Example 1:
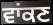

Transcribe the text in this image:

ਵਾਂਕਣ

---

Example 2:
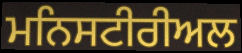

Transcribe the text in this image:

ਮਨਿਸਟੀਰੀਅਲ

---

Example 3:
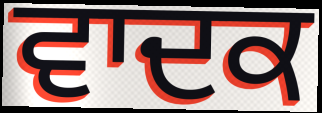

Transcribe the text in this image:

ਵਾਦਕ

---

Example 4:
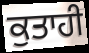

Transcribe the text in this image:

ਕੁਤਾਹੀ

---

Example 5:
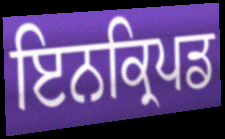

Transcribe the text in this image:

ਇਨਕ੍ਰਿਪਡ